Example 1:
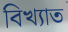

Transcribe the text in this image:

বিখ্যাত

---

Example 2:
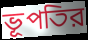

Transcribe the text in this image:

ভূপতির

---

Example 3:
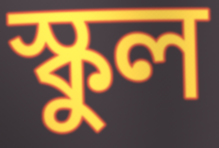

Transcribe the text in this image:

স্কুল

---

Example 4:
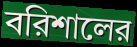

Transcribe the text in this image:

বরিশালের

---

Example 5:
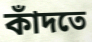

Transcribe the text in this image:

কাঁদতে